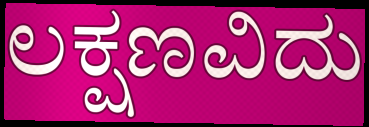
ಲಕ್ಷಣವಿದು